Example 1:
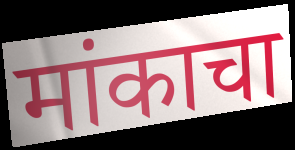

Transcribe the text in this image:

मांकाचा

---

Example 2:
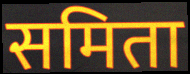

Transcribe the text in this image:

समिता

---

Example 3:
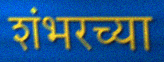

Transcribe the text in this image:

शंभरच्या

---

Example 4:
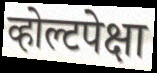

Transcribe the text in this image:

व्होल्टपेक्षा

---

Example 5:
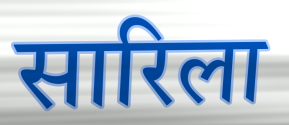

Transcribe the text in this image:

सारिला